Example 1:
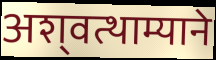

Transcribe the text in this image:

अश्वत्थाम्याने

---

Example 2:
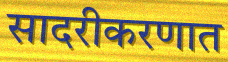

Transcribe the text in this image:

सादरीकरणात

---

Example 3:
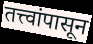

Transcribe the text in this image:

तत्त्वांपासून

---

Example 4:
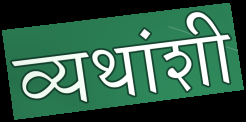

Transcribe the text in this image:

व्यथांशी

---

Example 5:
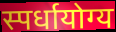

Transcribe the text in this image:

स्पर्धायोग्य